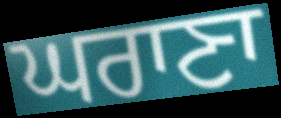
ਘਰਾਣਾ